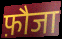
फ़ौजा